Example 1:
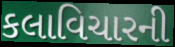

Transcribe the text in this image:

કલાવિચારની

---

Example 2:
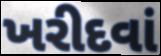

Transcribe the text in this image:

ખરીદવાં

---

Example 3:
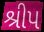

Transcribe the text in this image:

શ્રીપ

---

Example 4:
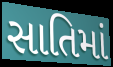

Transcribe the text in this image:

સાતિમાં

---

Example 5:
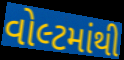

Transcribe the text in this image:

વોલ્ટમાંથી